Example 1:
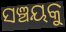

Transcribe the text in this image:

ସଞ୍ଚୟକୁ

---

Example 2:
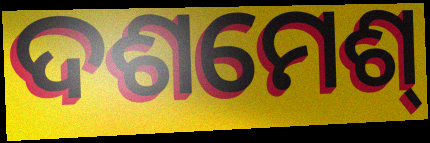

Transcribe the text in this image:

ଦଶମେଶ୍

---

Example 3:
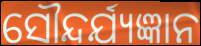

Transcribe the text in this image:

ସୌନ୍ଦର୍ଯ୍ୟଜ୍ଞାନ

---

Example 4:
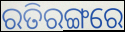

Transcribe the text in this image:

ରତିରଙ୍ଗରେ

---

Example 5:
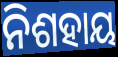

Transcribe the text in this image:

ନିଶହାୟ